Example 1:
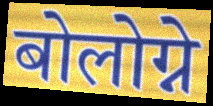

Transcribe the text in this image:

बोलोग्ने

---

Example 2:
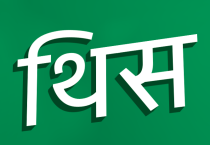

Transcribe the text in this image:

थिस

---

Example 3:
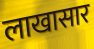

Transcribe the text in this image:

लाखासार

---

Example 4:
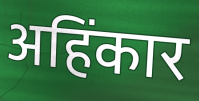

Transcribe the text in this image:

अहिंकार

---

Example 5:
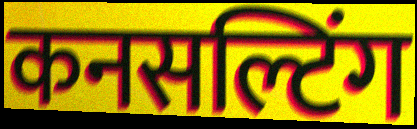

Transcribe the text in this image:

कनसल्टिंग